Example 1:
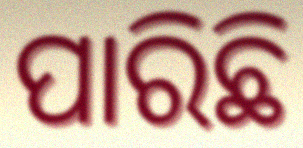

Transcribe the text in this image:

ପାରିଛି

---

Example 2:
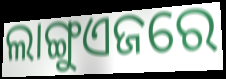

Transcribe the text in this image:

ଲାଙ୍ଗୁଏଜରେ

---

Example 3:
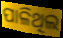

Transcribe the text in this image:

ପାଳିଥିଲ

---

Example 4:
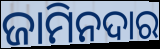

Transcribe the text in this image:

ଜାମିନଦାର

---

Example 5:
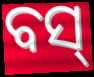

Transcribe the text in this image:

ବସ୍